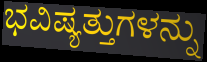
ಭವಿಷ್ಯತ್ತುಗಳನ್ನು